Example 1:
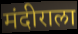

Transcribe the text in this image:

मंदीराला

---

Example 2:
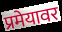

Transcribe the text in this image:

प्रमेयावर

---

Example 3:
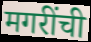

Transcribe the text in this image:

मगरींची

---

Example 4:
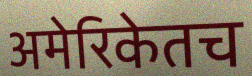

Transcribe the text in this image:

अमेरिकेतच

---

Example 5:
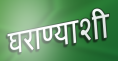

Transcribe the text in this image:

घराण्याशी